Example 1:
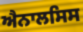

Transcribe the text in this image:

ਐਨਾਲਸਿਸ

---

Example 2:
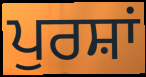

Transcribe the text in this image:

ਪੁਰਸ਼ਾਂ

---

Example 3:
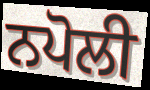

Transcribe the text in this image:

ਨਪੋਲੀ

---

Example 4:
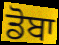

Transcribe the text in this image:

ਡੋਬਾ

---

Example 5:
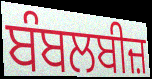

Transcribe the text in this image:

ਬੰਬਲਬੀਜ਼